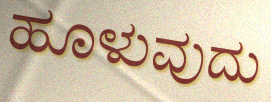
ಹೂಳುವುದು